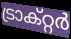
ട്രാക്റ്റർ